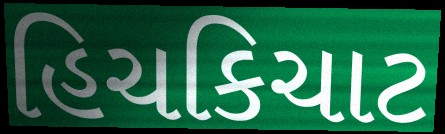
હિચકિચાટ